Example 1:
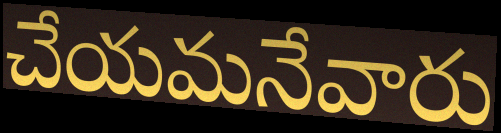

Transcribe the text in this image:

చేయమనేవారు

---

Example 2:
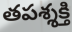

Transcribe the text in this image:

తపశ్శక్తి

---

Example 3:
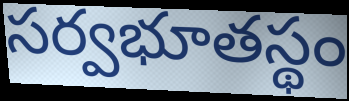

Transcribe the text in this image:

సర్వభూతస్థం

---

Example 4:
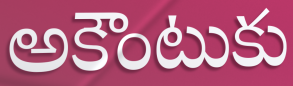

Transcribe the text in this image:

అకౌంటుకు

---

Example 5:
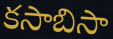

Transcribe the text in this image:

కసాబిసా